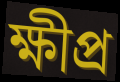
ক্ষীপ্ৰ